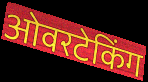
ओवरटेकिंग